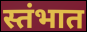
स्तंभात